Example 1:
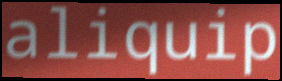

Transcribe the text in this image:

aliquip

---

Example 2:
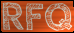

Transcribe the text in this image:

RFQ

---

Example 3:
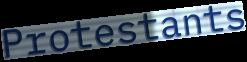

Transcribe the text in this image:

Protestants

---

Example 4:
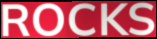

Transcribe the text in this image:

ROCKS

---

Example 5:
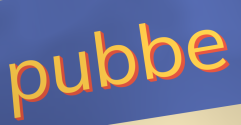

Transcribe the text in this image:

pubbe